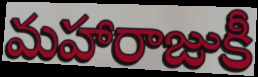
మహారాజుకీ